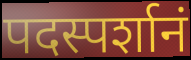
पदस्पर्शानं